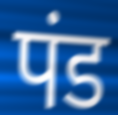
पंड